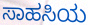
ಸಾಹಸಿಯ